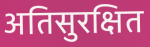
अतिसुरक्षित